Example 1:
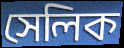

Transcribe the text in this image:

সেলিক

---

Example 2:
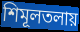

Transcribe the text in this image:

শিমূলতলায়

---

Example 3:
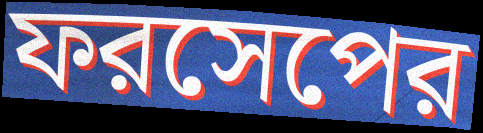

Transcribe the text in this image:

ফরসেপের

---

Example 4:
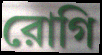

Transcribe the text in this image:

রোগি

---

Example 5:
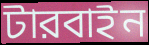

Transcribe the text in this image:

টারবাইন